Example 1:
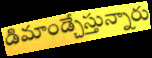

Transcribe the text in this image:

డిమాండ్చేస్తున్నారు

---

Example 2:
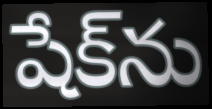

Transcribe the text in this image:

షేక్‌ను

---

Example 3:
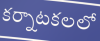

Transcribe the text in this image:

కర్నాటకలలో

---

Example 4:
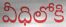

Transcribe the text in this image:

వీధిలోకి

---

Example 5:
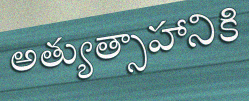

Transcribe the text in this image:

అత్యుత్సాహానికి